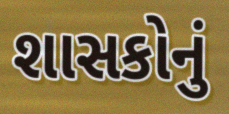
શાસકોનું